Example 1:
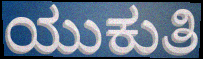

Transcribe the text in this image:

ಯುಕುತಿ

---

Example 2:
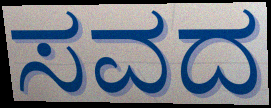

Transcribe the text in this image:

ಸವದ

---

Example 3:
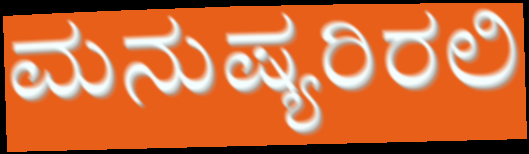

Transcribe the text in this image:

ಮನುಷ್ಯರಿರಲಿ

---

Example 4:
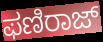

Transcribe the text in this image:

ಫಣಿರಾಜ್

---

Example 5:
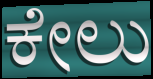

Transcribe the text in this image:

ಕೇಲು